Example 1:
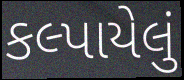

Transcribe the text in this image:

કલ્પાયેલું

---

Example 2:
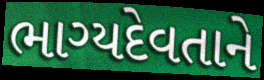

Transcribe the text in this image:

ભાગ્યદેવતાને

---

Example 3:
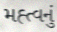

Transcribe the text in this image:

મહ્ત્વનું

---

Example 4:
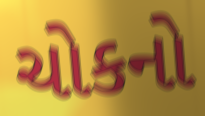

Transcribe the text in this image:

ચોકનો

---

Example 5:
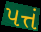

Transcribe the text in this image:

પત્તં